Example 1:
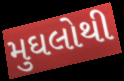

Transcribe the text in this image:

મુઘલોથી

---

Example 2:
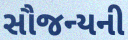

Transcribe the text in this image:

સૌજન્યની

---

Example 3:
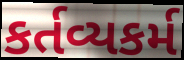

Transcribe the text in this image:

કર્તવ્યકર્મ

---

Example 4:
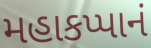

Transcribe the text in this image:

મહાકપ્પાનં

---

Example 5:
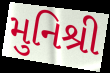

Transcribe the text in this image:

મુનિશ્રી